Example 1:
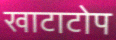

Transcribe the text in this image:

खाटाटोप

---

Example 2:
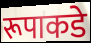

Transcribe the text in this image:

रूपाकडे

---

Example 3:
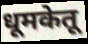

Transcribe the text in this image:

धूमकेतू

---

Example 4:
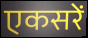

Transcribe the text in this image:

एकसरें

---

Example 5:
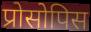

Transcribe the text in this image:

प्रोसोपिस